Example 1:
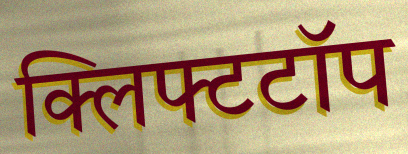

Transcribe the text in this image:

क्लिफ्टटॉप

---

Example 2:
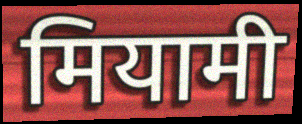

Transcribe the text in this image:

मियामी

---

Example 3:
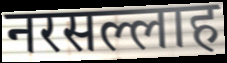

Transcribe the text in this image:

नरसल्लाह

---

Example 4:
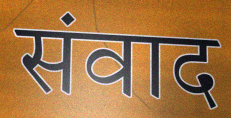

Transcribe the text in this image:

संवाद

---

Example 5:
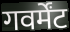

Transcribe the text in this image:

गवर्मेंट